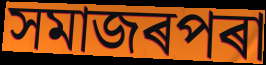
সমাজৰপৰা